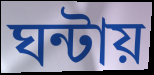
ঘন্টায়